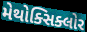
મેથોક્સિક્લોર